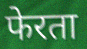
फेरता